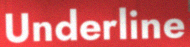
Underline